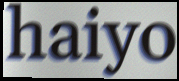
haiyo